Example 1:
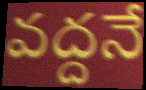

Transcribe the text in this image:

వద్దనే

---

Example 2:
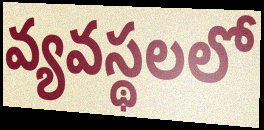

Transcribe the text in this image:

వ్యవస్థలలో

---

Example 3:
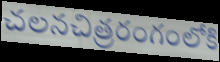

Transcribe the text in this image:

చలనచిత్రరంగంలోకి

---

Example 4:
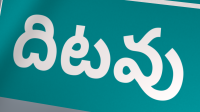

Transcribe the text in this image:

దిటవు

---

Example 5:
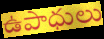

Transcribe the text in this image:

ఉపాధులు